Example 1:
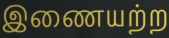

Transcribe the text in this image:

இணையற்ற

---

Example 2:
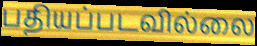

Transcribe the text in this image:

பதியப்படவில்லை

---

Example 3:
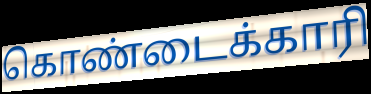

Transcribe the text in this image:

கொண்டைக்காரி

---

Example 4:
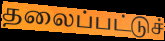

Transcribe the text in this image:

தலைப்பட்டுச்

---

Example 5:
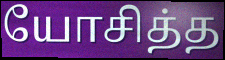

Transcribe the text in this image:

யோசித்த